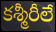
కశ్మీరీలే